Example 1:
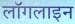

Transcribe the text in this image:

लॉगलाइन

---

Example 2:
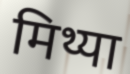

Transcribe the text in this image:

मिथ्‍या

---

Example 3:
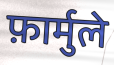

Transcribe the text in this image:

फ़ार्मुले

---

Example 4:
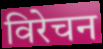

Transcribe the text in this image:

विरेचन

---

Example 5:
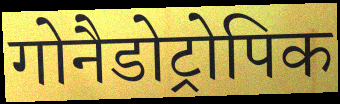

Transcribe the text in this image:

गोनैडोट्रोपिक